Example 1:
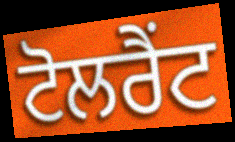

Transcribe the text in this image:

ਟੋਲਰੈਂਟ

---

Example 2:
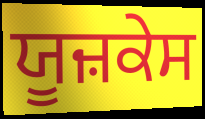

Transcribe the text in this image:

ਯੂਜ਼ਕੇਸ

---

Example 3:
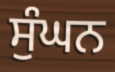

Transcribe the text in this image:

ਸੁੰਘਨ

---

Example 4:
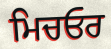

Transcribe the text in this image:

ਮਿਚਓਰ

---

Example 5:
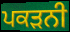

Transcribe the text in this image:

ਪਕੜਨੀ